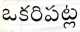
ఒకరిపట్ల